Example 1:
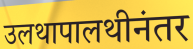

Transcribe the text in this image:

उलथापालथीनंतर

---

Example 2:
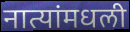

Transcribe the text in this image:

नात्यांमधली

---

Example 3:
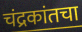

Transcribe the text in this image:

चंद्रकांतचा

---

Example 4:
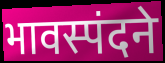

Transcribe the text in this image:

भावस्पंदने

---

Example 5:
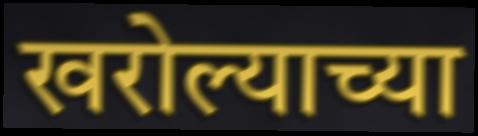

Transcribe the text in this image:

खरोल्याच्या